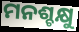
ମନଶ୍ଚକ୍ଷୁ